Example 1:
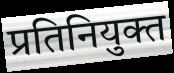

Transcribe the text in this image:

प्रतिनियुक्त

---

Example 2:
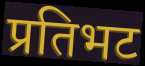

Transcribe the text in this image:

प्रतिभट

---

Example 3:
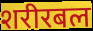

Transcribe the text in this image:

शरीरबल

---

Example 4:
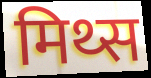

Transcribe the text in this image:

मिथ्स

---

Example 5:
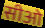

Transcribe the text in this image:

सीओ